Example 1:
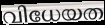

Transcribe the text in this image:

വിധേയത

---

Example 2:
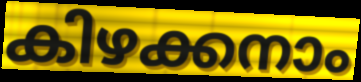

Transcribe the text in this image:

കിഴക്കനാം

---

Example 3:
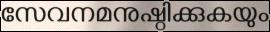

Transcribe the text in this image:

സേവനമനുഷ്ഠിക്കുകയും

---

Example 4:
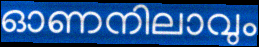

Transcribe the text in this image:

ഓണനിലാവും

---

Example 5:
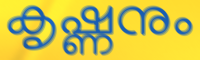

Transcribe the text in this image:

കൃഷ്ണനും